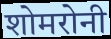
शोमरोनी